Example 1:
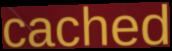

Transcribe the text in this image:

cached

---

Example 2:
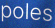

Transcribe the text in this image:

poles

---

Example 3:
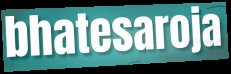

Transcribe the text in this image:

bhatesaroja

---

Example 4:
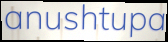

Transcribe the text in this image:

anushtupa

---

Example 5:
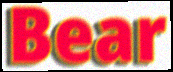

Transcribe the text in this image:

Bear